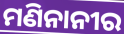
ମଣିନାନୀର